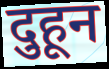
दुहून